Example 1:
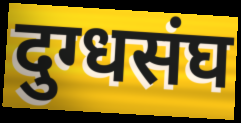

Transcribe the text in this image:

दुग्धसंघ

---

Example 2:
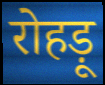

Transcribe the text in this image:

रोहड़ू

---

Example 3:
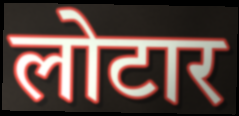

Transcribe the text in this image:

लोटार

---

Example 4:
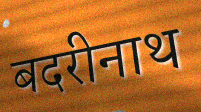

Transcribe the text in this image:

बदरीनाथ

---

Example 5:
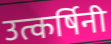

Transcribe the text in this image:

उत्कर्षिनी